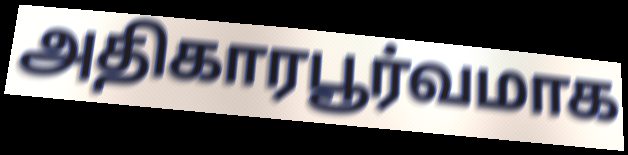
அதிகாரபூர்வமாக